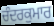
ਚੰਦਰਕੁਮਾਰ